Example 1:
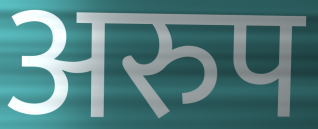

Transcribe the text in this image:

अरुप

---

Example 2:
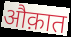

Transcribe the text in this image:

औक़ात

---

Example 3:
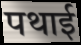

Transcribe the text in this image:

पथाई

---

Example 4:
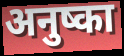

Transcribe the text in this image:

अनुष्का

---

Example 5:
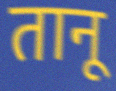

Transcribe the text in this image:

तानू